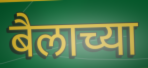
बैलाच्या